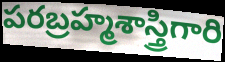
పరబ్రహ్మశాస్త్రిగారి